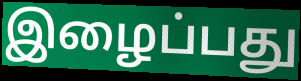
இழைப்பது